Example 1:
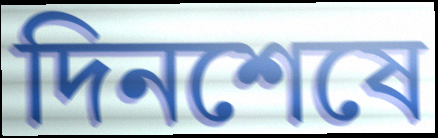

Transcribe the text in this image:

দিনশেষে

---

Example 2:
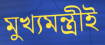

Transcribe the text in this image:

মুখ্যমন্ত্রীই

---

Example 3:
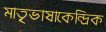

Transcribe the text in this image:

মাতৃভাষাকেন্দ্রিক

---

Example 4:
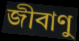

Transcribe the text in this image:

জীবাণু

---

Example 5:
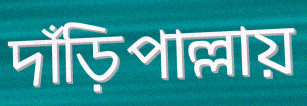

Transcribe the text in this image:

দাঁড়িপাল্লায়